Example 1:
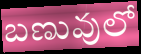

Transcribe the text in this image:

బణువులో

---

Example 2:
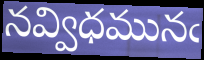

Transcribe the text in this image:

నవ్విధమునఁ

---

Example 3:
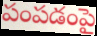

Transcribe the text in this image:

పంపడంపై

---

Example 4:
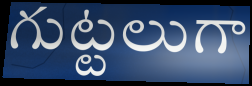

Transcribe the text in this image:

గుట్టలుగా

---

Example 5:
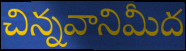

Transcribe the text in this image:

చిన్నవానిమీద